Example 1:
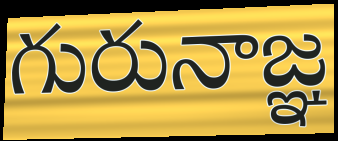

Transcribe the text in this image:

గురునాజ్ఞ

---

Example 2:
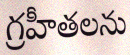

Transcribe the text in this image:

గ్రహీతలను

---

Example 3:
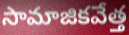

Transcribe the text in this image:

సామాజికవేత్త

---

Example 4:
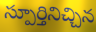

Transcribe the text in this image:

స్పూర్తినిచ్చిన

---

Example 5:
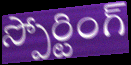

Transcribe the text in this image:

స్పోర్టింగ్